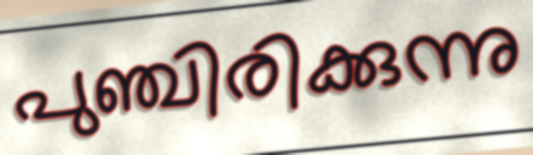
പുഞ്ചിരിക്കുന്നു